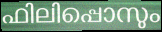
ഫിലിപ്പൊസും